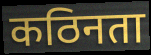
कठिनता